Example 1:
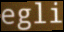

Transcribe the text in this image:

egli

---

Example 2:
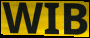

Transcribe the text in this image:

WIB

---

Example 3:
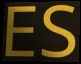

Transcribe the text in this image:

ES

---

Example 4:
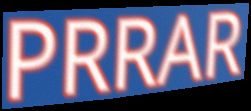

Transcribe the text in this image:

PRRAR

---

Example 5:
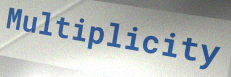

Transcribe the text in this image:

Multiplicity